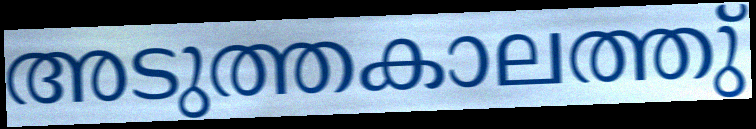
അടുത്തകാലത്തു്